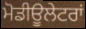
ਮੋਡੀਊਲੇਟਰਾਂ